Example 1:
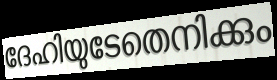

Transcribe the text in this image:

ദേഹിയുടേതെനിക്കും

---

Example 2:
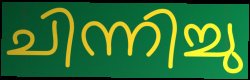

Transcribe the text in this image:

ചിന്നിച്ചു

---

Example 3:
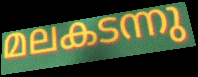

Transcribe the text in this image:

മലകടന്നു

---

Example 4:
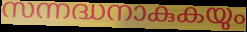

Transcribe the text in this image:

സന്നദ്ധനാകുകയും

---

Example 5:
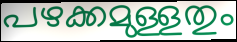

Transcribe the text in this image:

പഴക്കമുള്ളതും